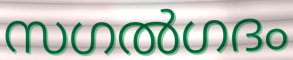
സഗൽഗദം